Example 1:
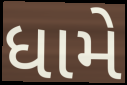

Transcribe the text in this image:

ધામે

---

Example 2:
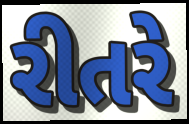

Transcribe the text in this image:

રીતરે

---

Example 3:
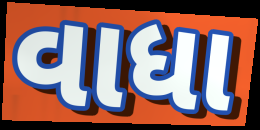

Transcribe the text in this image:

વાધા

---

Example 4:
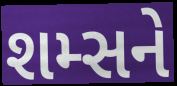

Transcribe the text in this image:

શમ્સને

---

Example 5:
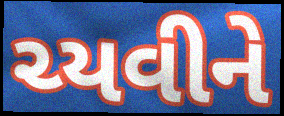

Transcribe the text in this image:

ચ્યવીને